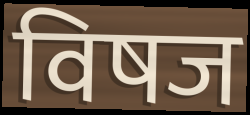
विषज